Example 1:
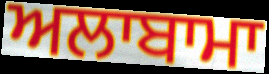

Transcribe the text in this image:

ਅਲਾਬਾਮਾ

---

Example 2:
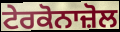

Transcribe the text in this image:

ਟੇਰਕੋਨਾਜ਼ੋਲ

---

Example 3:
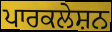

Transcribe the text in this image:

ਪਾਰਕਲੇਸ਼ਨ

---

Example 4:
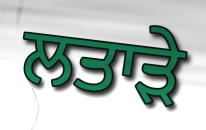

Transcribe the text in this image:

ਲਤਾਡ਼ੇ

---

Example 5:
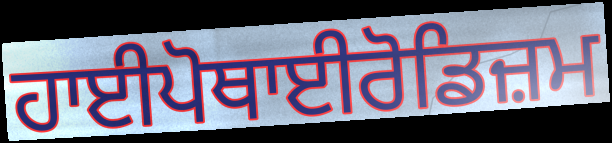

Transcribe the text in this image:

ਹਾਈਪੋਥਾਈਰੋਡਿਜ਼ਮ